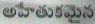
అహేతుకమైన